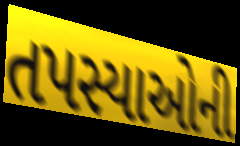
તપસ્યાઓની